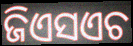
ଜିଏସଏଚ